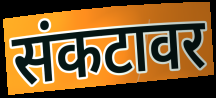
संकटावर